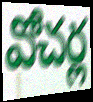
వోచర్ల